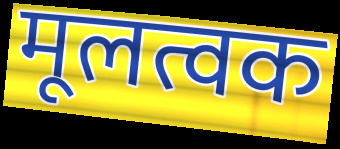
मूलत्वक